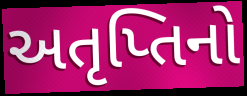
અતૃપ્તિનો